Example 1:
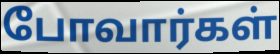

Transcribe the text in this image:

போவார்கள்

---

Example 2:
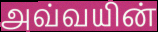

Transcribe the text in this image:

அவ்வயின்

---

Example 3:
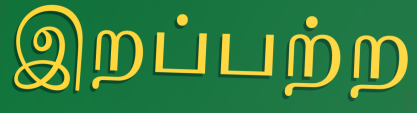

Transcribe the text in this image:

இறப்பற்ற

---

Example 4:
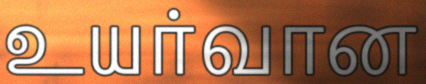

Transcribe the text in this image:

உயர்வான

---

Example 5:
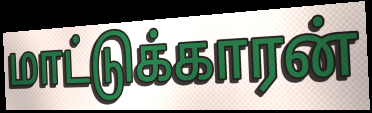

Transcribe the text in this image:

மாட்டுக்காரன்